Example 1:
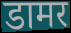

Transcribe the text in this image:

डामर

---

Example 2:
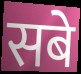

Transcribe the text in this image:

सबे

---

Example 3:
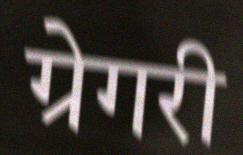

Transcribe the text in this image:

ग्रेगरी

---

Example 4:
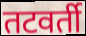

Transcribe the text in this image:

तटवर्ती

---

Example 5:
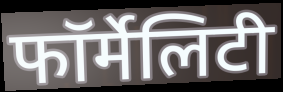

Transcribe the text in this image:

फॉर्मेलिटी